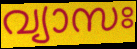
വ്യാസഃ